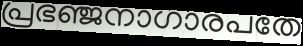
പ്രഭഞ്ജനാഗാരപതേ